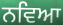
ਨਵਿਆ